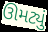
ઊમટ્યું